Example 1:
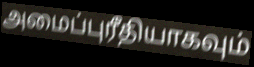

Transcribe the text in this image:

அமைப்புரீதியாகவும்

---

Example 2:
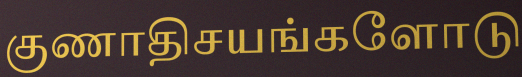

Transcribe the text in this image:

குணாதிசயங்களோடு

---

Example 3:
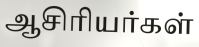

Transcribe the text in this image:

ஆசிரியர்கள்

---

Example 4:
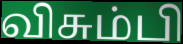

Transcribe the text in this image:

விசும்பி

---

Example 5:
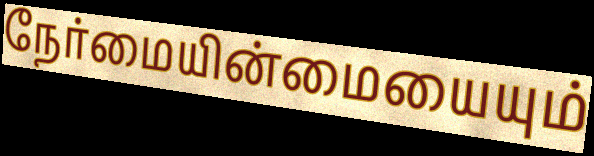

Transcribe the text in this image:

நேர்மையின்மையையும்